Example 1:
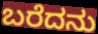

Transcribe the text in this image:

ಬರೆದನು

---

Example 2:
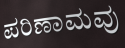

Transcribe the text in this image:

ಪರಿಣಾಮವು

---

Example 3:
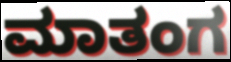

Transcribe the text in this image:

ಮಾತಂಗ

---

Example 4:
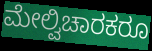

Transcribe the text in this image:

ಮೇಲ್ವಿಚಾರಕರೂ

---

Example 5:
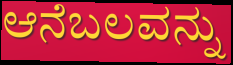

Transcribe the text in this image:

ಆನೆಬಲವನ್ನು